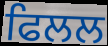
ਫਿਲਲ